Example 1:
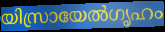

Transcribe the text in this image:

യിസ്രായേൽഗൃഹം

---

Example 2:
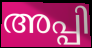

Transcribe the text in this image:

അപ്പി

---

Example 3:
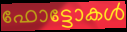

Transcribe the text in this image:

ഫോട്ടോകൾ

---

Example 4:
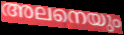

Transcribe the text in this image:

അലനെയും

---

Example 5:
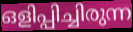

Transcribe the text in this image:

ഒളിപ്പിച്ചിരുന്ന